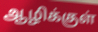
ஆழிக்குள்